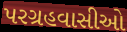
પરગ્રહવાસીઓ